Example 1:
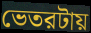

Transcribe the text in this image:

ভেতরটায়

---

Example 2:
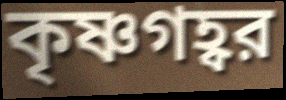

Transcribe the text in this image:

কৃষ্ণগহ্বর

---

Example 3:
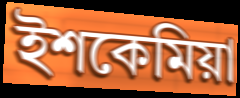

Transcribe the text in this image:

ইশকেমিয়া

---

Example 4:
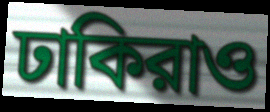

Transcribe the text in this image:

ঢাকিরাও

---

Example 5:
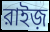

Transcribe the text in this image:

রাইজ়